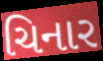
ચિનાર